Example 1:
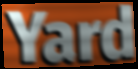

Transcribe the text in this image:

Yard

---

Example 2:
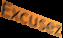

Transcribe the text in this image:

Excusez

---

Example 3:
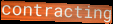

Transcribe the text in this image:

contracting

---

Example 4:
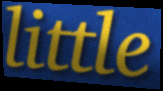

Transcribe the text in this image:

little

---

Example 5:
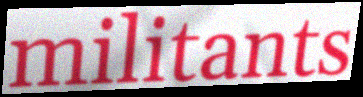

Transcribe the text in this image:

militants